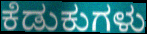
ಕೆಡುಕುಗಳು